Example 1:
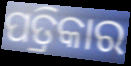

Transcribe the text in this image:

ପତ୍ରିକାର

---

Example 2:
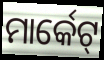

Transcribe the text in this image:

ମାର୍କେଟ୍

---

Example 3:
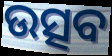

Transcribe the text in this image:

ଉତ୍ସବ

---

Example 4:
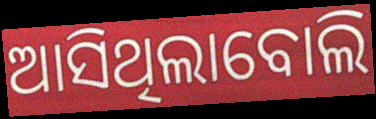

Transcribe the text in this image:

ଆସିଥିଲାବୋଲି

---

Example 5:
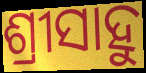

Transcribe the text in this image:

ଶ୍ରୀସାହୁ